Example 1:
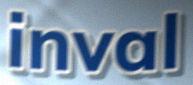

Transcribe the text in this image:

inval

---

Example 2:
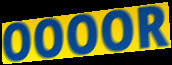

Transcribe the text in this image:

OOOOR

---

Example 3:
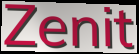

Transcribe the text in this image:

Zenit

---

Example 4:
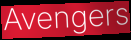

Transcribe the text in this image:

Avengers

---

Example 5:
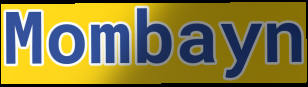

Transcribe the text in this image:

Mombayn